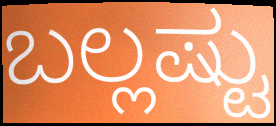
ಬಲ್ಲಷ್ಟು